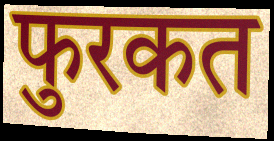
फुरकत